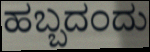
ಹಬ್ಬದಂದು